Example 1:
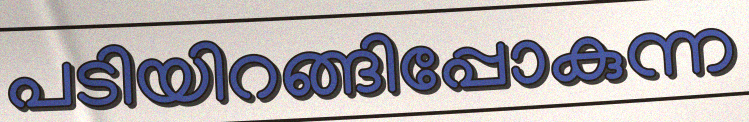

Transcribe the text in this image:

പടിയിറങ്ങിപ്പോകുന്ന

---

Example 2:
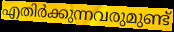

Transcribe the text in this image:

എതിർക്കുന്നവരുമുണ്ട്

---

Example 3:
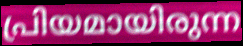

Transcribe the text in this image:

പ്രിയമായിരുന്ന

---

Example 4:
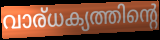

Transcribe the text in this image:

വാര്ധക്യത്തിന്റെ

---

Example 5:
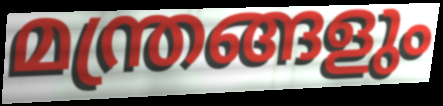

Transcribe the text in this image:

മന്ത്രങ്ങളും